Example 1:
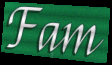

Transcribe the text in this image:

Fam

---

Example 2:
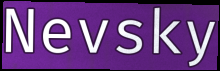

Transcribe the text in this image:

Nevsky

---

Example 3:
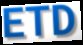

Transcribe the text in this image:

ETD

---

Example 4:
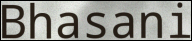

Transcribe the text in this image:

Bhasani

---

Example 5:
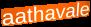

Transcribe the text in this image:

aathavale